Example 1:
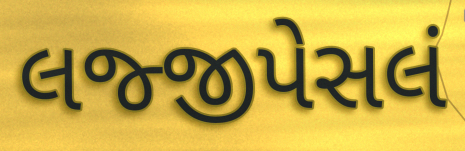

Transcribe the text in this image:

લજ્જીપેસલં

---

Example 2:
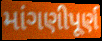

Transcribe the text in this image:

માંગણીપૂર્ણ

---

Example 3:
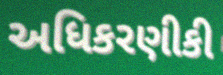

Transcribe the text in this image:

અધિકરણીકી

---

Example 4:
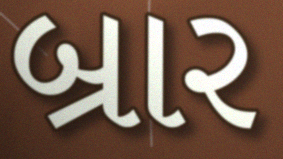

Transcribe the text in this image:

બ્રાર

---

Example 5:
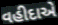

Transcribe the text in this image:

વહીદાએ